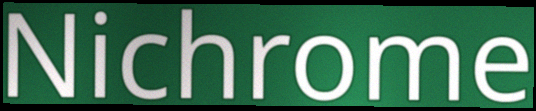
Nichrome